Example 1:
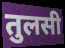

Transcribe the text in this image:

तुलसी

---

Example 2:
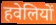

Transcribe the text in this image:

हवेलियों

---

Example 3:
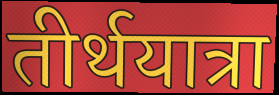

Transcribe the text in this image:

तीर्थयात्रा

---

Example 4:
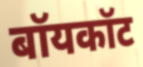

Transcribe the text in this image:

बॉयकॉट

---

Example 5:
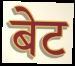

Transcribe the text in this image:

बेट